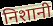
निशानी